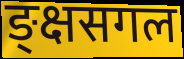
ङ्क्षसगल